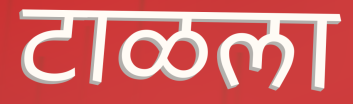
टाळला